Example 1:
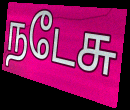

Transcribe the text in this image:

நடேசு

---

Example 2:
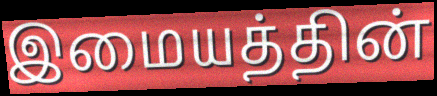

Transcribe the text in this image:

இமையத்தின்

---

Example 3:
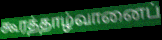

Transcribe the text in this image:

கூரத்தாழ்வானைப்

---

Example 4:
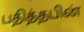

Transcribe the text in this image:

பதித்தபின்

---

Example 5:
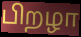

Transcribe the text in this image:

பிறழா